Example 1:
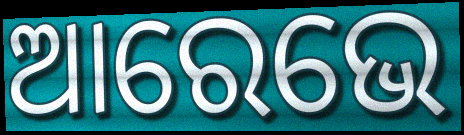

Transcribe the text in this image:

ଆରେଭେ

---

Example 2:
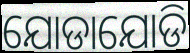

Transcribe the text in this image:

ଯୋଡାଯୋଡି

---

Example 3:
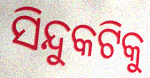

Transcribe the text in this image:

ସିନ୍ଦୁକଟିକୁ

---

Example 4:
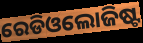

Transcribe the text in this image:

ରେଡିଓଲୋଜିଷ୍ଟ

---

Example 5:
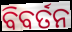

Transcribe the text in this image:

ବିବର୍ତନ